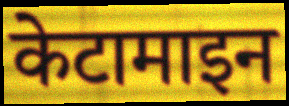
केटामाइन